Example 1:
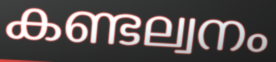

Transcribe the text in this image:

കണ്ടല്വനം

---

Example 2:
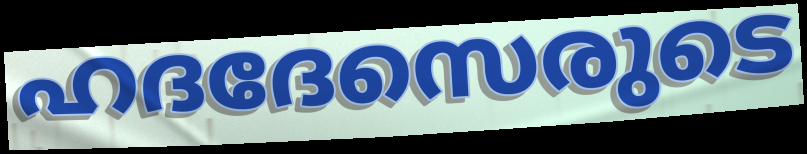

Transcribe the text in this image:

ഹദദേസെരുടെ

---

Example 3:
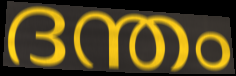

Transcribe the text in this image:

ദന്തം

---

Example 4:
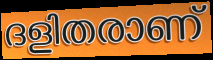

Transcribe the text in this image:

ദളിതരാണ്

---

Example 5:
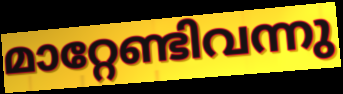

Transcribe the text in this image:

മാറ്റേണ്ടിവന്നു